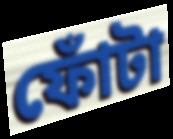
ফোঁটা